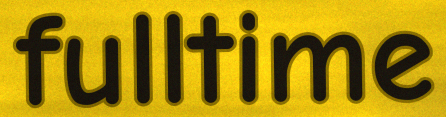
fulltime